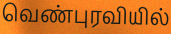
வெண்புரவியில்